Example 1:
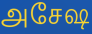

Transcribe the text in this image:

அசேஷ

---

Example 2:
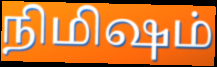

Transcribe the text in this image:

நிமிஷம்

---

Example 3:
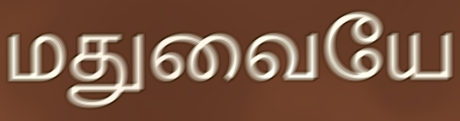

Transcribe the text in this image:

மதுவையே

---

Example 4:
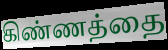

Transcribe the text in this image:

கிண்ணத்தை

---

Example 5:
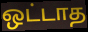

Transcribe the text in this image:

ஒட்டாத